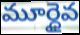
మూర్ధైవ